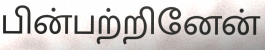
பின்பற்றினேன்